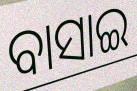
ବାସାଇ